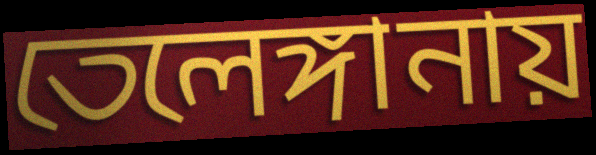
তেলেঙ্গানায়